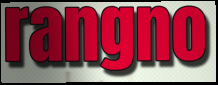
rangno